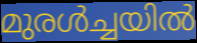
മുരൾച്ചയിൽ